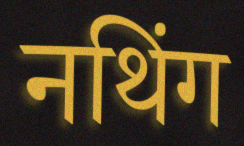
नथिंग